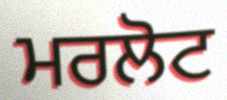
ਮਰਲੋਟ